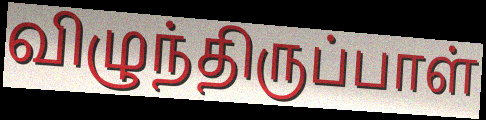
விழுந்திருப்பாள்